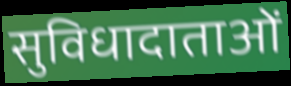
सुविधादाताओं